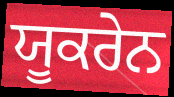
ਯੂਕਰੇਨ